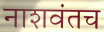
नाशवंतच